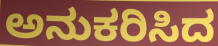
ಅನುಕರಿಸಿದ